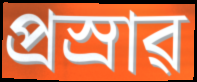
প্ৰস্ৰাৱ